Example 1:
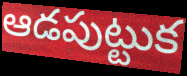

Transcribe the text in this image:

ఆడపుట్టుక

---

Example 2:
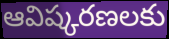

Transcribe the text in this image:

ఆవిష్కరణలకు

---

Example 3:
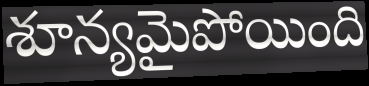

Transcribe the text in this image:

శూన్యమైపోయింది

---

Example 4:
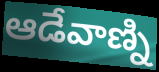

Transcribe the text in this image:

ఆడేవాణ్ని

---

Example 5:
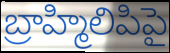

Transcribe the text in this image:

బ్రాహ్మిలిపిపై